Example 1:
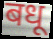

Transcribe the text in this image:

बधू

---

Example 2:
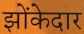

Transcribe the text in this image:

झोंकेदार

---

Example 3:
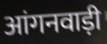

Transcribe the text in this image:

आंगनवाड़ी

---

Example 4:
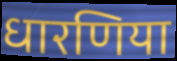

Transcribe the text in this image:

धारणिया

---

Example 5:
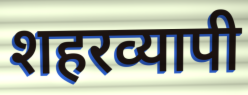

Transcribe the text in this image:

शहरव्यापी